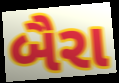
બૈરા